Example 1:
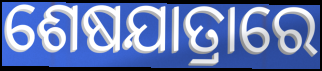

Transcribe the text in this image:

ଶେଷଯାତ୍ରାରେ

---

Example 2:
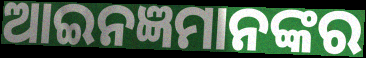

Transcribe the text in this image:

ଆଇନଜ୍ଞମାନଙ୍କର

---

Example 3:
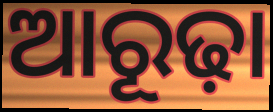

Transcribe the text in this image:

ଆରୂଢ଼ା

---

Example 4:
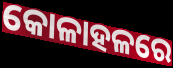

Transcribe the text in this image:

କୋଳାହଳରେ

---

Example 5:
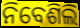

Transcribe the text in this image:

ନିବେଶିଲି